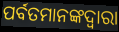
ପର୍ବତମାନଙ୍କଦ୍ଵାରା